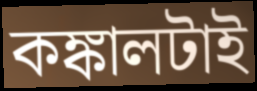
কঙ্কালটাই